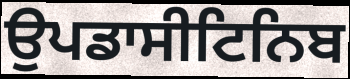
ਉਪਡਾਸੀਟਿਨਿਬ